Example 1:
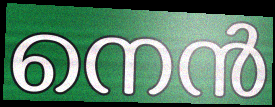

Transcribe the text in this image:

നെൻ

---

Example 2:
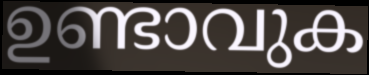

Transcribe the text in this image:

ഉണ്ടാവുക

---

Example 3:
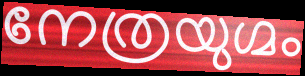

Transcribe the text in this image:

നേത്രയുഗ്മം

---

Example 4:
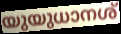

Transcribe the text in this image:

യുയുധാനശ്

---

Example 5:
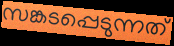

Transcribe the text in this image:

സങ്കടപ്പെടുന്നത്